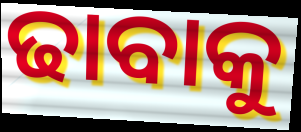
ଢାବାକୁ